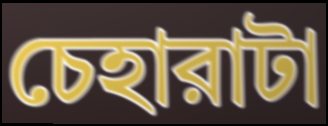
চেহারাটা